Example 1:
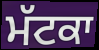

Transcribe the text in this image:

ਮੱਟਕਾ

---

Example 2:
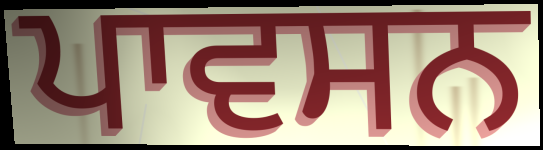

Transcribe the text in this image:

ਪਾਵਸਨ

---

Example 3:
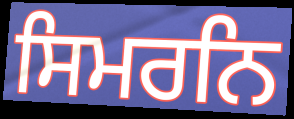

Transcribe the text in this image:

ਸਿਮਰਨਿ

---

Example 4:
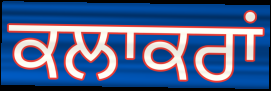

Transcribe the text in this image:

ਕਲਾਕਰਾਂ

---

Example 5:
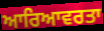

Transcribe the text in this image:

ਆਰਿਆਵਰਤਾ